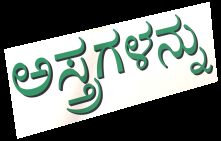
ಅಸ್ತ್ರಗಳನ್ನು